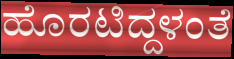
ಹೊರಟಿದ್ದಳಂತೆ